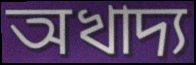
অখাদ্য